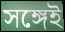
সঙ্গেই